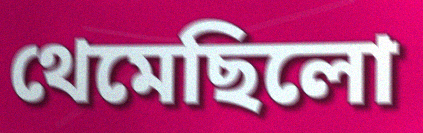
থেমেছিলো